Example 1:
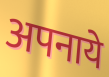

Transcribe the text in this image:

अपनाये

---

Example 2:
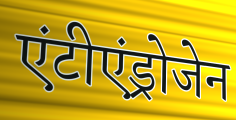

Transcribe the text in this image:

एंटीएंड्रोजेन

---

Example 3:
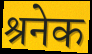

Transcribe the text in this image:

श्रनेक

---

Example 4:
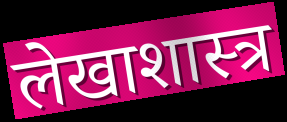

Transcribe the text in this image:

लेखाशास्त्र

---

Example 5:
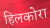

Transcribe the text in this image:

हिलकोरा